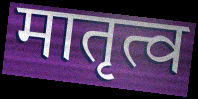
मातृत्व